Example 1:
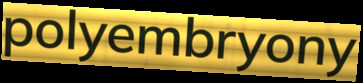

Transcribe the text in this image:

polyembryony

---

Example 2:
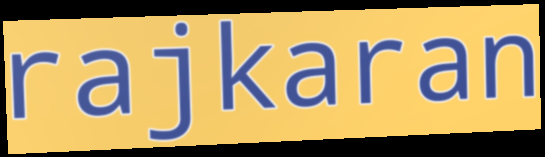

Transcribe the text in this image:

rajkaran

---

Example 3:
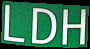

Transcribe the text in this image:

LDH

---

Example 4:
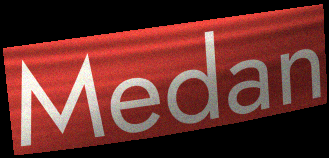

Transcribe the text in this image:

Medan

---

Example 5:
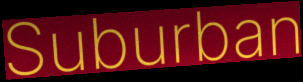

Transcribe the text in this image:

Suburban